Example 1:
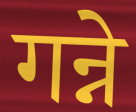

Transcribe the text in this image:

गन्ने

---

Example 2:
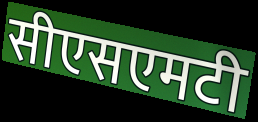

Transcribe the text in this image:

सीएसएमटी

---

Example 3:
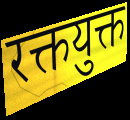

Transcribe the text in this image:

रक्तयुक्त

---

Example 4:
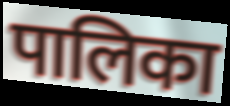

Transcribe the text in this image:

पालिका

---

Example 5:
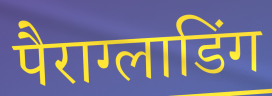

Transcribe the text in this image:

पैराग्लाडिंग